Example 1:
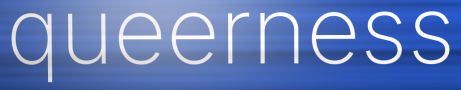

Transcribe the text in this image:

queerness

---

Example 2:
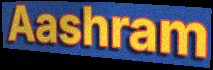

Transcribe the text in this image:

Aashram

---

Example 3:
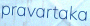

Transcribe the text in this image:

pravartaka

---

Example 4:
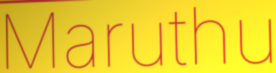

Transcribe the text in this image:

Maruthu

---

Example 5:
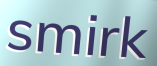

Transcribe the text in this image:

smirk